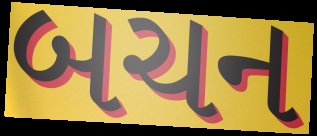
બચન